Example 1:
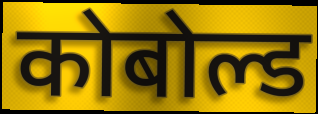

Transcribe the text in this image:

कोबोल्ड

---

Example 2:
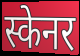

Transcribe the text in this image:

स्केनर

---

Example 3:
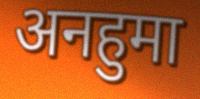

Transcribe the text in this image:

अनहुमा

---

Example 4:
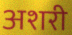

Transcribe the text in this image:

अशरी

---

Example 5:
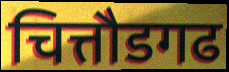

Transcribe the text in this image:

चित्तौडगढ